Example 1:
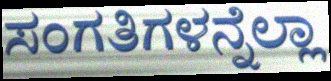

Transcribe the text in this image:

ಸಂಗತಿಗಳನ್ನೆಲ್ಲಾ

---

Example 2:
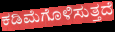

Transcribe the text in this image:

ಕಡಿಮೆಗೊಳಿಸುತ್ತದೆ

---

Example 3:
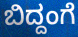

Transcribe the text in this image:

ಬಿದ್ದಂಗೆ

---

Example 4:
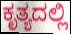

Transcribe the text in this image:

ಕೃತ್ಯದಲ್ಲಿ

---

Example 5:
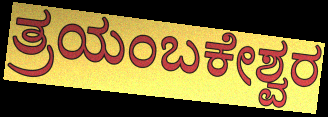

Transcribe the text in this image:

ತ್ರಯಂಬಕೇಶ್ವರ